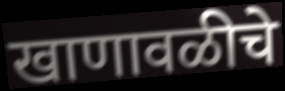
खाणावळीचे